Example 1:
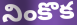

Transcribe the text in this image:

నింకొక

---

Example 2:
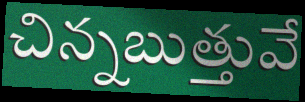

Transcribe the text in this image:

చిన్నబుత్తువే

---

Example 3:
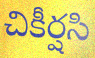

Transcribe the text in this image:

చికీర్షసి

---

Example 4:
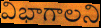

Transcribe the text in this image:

విభాగాలని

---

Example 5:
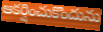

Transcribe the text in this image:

ఆకర్షించుకొందును